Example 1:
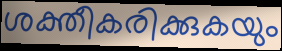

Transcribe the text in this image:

ശക്തീകരിക്കുകയും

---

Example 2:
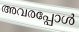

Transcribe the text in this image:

അവരപ്പോൾ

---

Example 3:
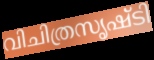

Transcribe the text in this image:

വിചിത്രസൃഷ്ടി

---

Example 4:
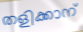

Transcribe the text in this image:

തളിക്കാന്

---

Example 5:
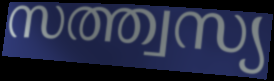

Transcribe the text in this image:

സത്ത്വസ്യ